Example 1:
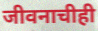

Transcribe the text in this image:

जीवनाचीही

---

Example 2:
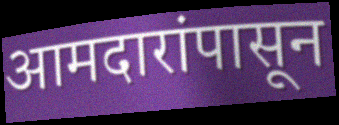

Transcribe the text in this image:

आमदारांपासून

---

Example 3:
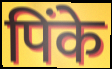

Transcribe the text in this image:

पिंके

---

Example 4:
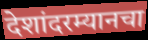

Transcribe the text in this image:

देशांदरम्यानचा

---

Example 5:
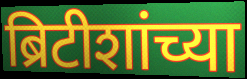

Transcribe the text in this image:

ब्रिटीशांच्या